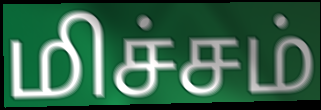
மிச்சம்